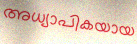
അധ്യാപികയായ